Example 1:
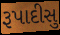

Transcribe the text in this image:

રૂપાદીસુ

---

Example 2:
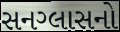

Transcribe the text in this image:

સનગ્લાસનો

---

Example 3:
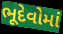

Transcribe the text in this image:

ભૂદેવોમાં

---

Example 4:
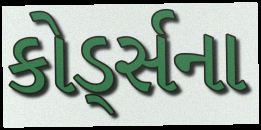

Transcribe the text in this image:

કોર્ડ્સના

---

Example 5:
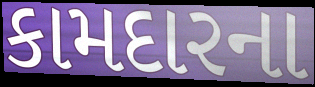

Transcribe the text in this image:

કામદારના